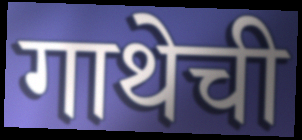
गाथेची